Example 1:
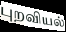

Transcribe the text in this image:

புறவியல்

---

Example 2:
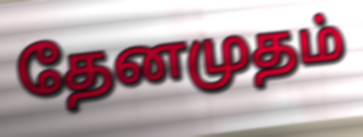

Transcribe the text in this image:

தேனமுதம்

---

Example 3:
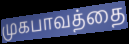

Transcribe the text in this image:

முகபாவத்தை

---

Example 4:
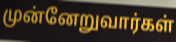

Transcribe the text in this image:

முன்னேறுவார்கள்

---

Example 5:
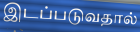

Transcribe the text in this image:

இடப்படுவதால்